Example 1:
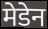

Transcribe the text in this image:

मेडेन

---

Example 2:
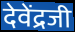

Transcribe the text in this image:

देवेंद्रजी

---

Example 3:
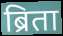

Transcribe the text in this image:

ब्रिता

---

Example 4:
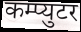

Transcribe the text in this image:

कम्प्युटर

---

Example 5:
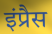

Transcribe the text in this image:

इंप्रैस